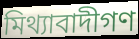
মিথ্যাবাদীগণ